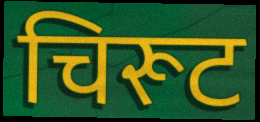
चिरूट